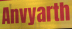
Anvyarth